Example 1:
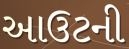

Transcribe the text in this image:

આઉટની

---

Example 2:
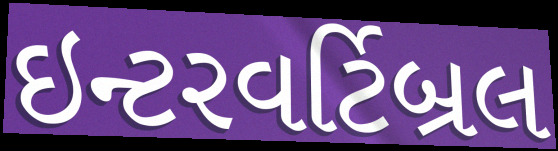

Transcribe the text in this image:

ઇન્ટરવર્ટિબ્રલ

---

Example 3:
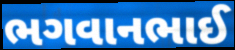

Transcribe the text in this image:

ભગવાનભાઈ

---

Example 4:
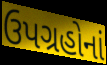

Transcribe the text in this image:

ઉપગ્રહોનાં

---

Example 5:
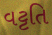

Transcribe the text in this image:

વટ્ટતિ